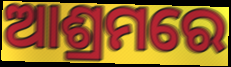
ଆଶ୍ରମରେ